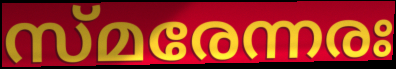
സ്മരേന്നരഃ